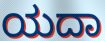
ಯದಾ